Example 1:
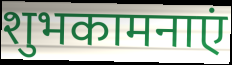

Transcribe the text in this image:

शुभकामनाएं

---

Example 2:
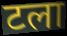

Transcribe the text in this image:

टला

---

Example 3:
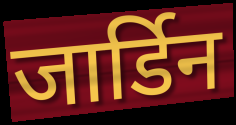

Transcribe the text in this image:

जार्डिन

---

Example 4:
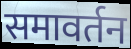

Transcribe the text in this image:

समावर्तन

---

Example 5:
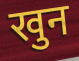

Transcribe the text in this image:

खुन